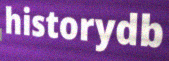
historydb